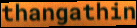
thangathin